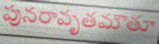
పునరావృతమౌతూ